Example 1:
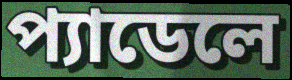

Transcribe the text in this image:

প্যাডেলে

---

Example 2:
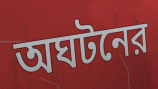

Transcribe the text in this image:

অঘটনের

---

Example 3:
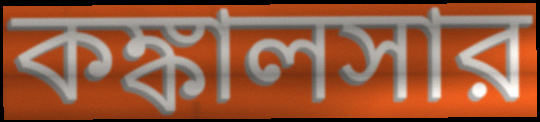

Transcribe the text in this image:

কঙ্কালসার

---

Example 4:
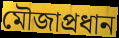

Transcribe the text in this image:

মৌজাপ্রধান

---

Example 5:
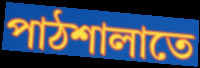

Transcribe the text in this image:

পাঠশালাতে